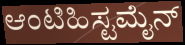
ಆಂಟಿಹಿಸ್ಟಮೈನ್